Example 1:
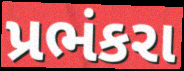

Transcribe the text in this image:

પ્રભંકરા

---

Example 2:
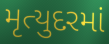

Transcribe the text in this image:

મૃત્યુદરમાં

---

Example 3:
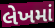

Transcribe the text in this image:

લેખમાં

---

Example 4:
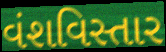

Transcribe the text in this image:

વંશવિસ્તાર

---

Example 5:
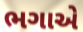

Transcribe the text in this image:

ભગાએ